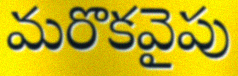
మరొకవైపు